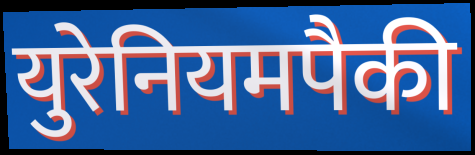
युरेनियमपैकी